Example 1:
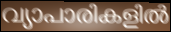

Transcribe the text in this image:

വ്യാപാരികളിൽ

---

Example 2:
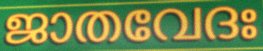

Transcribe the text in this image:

ജാതവേദഃ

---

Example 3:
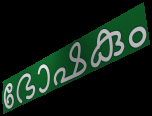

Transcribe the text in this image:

ഭോഷകും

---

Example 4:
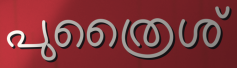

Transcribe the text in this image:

പുത്രൈശ്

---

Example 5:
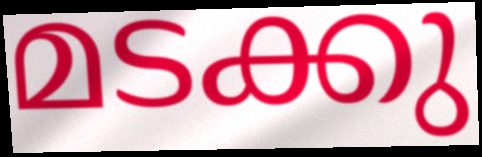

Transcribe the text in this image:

മടക്കു